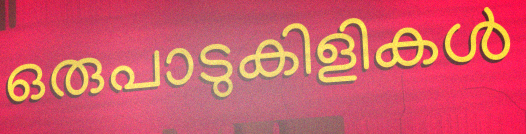
ഒരുപാടുകിളികൾ